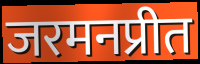
जरमनप्रीत